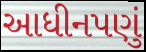
આધીનપણું